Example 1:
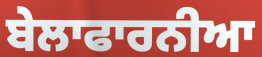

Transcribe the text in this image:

ਬੇਲਾਫਾਰਨੀਆ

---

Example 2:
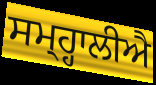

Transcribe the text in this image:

ਸਮ੍ਹ੍ਹਾਲੀਐ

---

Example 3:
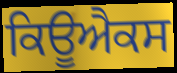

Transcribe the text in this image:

ਕਿਊਐਕਸ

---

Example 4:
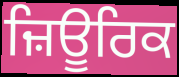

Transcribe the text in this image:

ਜ਼ਿਊਰਿਕ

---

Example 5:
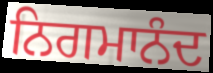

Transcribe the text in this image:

ਨਿਗਮਾਨੰਦ